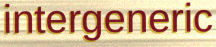
intergeneric